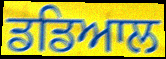
ਡਡਿਆਲ